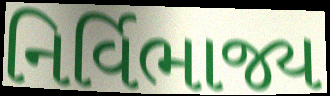
નિર્વિભાજ્ય